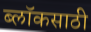
ब्लॉकसाठी